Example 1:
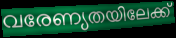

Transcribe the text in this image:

വരേണ്യതയിലേക്ക്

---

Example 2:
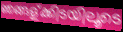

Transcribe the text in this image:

ഞങ്ങള്ക്കിടയിലൂടെ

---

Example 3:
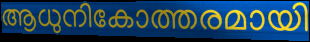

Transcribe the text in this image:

ആധുനികോത്തരമായി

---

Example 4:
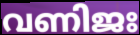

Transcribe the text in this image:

വണിജഃ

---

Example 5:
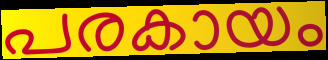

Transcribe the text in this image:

പരകായം